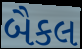
બૈકલ